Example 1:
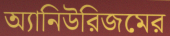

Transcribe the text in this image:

অ্যানিউরিজমের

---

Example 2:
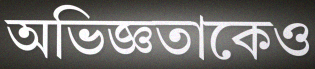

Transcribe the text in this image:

অভিজ্ঞতাকেও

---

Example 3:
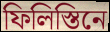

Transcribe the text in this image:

ফিলিস্তিনে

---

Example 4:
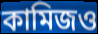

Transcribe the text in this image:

কামিজও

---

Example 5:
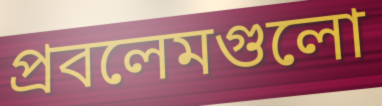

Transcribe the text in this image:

প্রবলেমগুলো